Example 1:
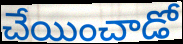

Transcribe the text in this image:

చేయించాడో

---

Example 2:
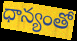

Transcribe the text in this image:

ధాన్యంతో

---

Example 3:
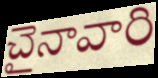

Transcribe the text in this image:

చైనావారి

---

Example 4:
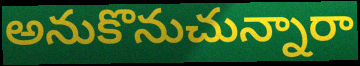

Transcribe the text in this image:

అనుకొనుచున్నారా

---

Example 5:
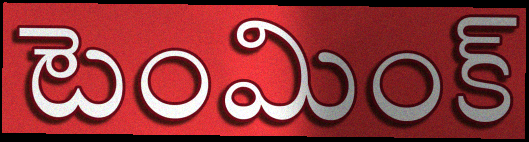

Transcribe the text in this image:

టెంమింక్